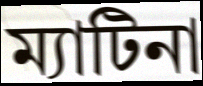
ম্যাটিনা